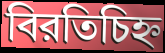
বিরতিচিহ্ন